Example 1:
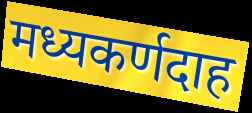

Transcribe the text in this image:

मध्यकर्णदाह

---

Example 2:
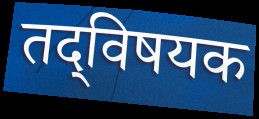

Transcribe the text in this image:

तद्‌विषयक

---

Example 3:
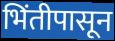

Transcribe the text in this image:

भिंतीपासून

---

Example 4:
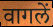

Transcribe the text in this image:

वागलें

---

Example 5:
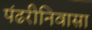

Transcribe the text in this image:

पंढरीनिवासा